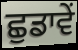
ਛੁਡਾਵੇਂ